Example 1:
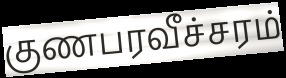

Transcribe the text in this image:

குணபரவீச்சரம்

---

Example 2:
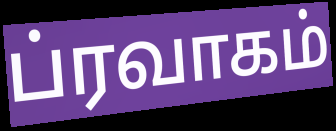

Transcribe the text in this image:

ப்ரவாகம்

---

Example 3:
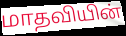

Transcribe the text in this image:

மாதவியின்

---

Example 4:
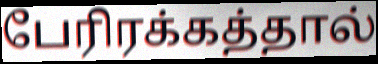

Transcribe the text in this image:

பேரிரக்கத்தால்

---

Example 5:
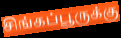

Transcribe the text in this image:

சிங்கப்பூருக்கு